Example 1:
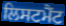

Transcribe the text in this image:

ਲਿਸਟਮੈਂਟ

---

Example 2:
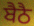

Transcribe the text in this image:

ਬੈਠੈ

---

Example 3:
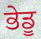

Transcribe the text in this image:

ਭੇਡੂ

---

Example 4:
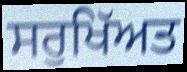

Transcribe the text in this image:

ਸਰੁਖਿੱਅਤ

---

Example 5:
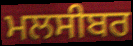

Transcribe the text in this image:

ਮਲਸੀਬਰ